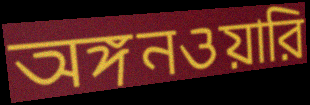
অঙ্গনওয়ারি